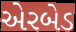
એરબેડ